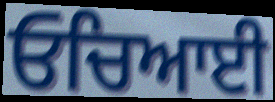
ਓਚਿਆਈ